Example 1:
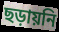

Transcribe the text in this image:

ছড়ায়নি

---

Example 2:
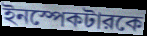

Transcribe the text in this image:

ইনস্পেকটারকে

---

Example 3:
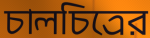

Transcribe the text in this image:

চালচিত্রের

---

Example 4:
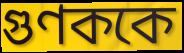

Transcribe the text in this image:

গুণককে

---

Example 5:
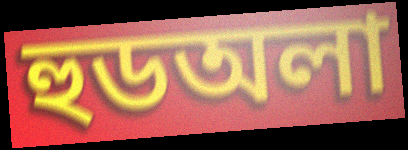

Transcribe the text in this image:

হুডঅলা